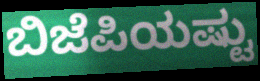
ಬಿಜೆಪಿಯಷ್ಟು